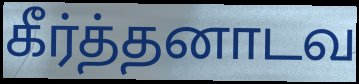
கீர்த்தனாடவ